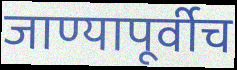
जाण्यापूर्वीच